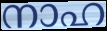
നാഹ